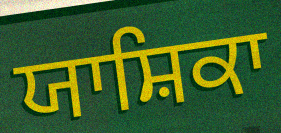
ਯਾਸ਼ਿਕਾ